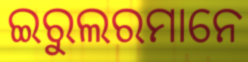
ଇରୁଲରମାନେ